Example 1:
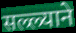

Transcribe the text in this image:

सल्ल्याने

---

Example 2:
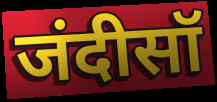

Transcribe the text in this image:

जंदीसॉ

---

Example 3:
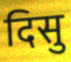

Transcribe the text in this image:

दिसु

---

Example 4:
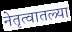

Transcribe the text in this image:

नेतृत्वातल्या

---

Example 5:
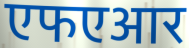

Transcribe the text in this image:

एफएआर